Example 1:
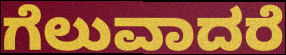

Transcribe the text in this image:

ಗೆಲುವಾದರೆ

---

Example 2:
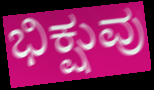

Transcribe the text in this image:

ಭಿಕ್ಷುವು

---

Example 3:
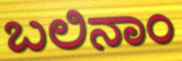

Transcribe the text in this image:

ಬಲಿನಾಂ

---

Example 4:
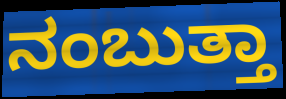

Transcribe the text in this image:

ನಂಬುತ್ತಾ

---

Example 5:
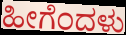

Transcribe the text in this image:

ಹೀಗೆಂದಳು